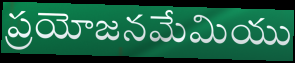
ప్రయోజనమేమియు